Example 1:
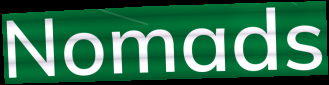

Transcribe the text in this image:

Nomads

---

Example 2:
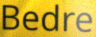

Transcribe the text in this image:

Bedre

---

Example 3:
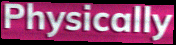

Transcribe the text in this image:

Physically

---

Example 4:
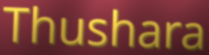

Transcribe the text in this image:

Thushara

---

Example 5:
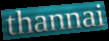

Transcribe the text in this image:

thannai